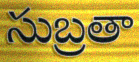
సుబ్రతా